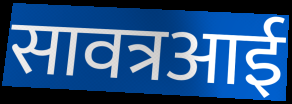
सावत्रआई